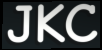
JKC